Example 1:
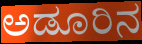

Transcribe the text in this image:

ಅಡೂರಿನ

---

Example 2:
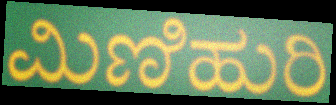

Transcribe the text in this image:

ಮಿಣಿಹುರಿ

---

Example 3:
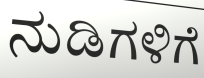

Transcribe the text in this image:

ನುಡಿಗಳಿಗೆ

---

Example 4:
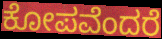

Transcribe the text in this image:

ಕೋಪವೆಂದರೆ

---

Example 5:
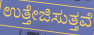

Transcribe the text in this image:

ಉತ್ತೇಜಿಸುತ್ತವೆ